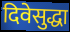
दिवेसुद्धा